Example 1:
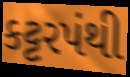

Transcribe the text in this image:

કટ્ટરપંથી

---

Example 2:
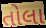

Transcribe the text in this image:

તોલા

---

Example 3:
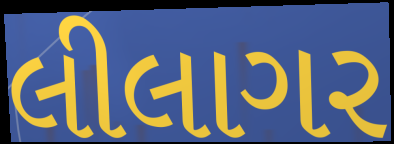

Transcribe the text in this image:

લીલાગર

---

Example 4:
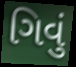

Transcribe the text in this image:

ગિવું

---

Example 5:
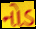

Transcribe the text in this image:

નોડ